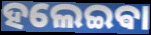
ହଲେଇଵା